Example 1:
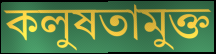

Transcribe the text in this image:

কলুষতামুক্ত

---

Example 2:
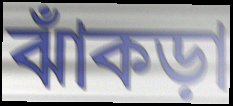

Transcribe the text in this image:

ঝাঁকড়া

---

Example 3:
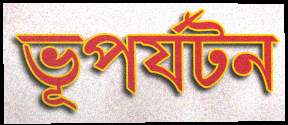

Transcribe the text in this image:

ভূপর্যটন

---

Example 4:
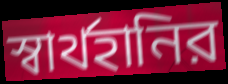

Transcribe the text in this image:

স্বার্থহানির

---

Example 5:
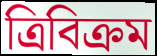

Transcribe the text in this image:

ত্রিবিক্রম